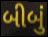
બીબું